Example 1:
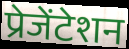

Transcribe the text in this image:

प्रेजेंटेशन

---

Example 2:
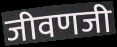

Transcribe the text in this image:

जीवणजी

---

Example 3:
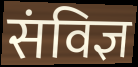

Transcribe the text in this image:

संविज्ञ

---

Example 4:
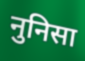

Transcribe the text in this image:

नुनिसा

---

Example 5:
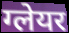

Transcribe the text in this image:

ग्लेयर